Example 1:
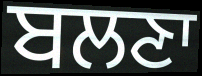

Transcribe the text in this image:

ਬਲਣਾ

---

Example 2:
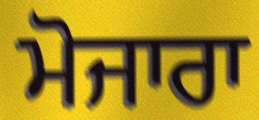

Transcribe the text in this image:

ਮੋਜਾਰਾ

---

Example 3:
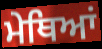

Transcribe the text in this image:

ਮੇਥਿਆਂ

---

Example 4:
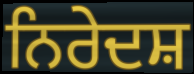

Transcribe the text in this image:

ਨਿਰੇਦਸ਼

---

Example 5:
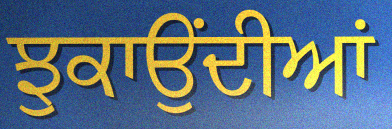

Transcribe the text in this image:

ਝੁਕਾਉਂਦੀਆਂ